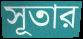
সূতার